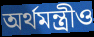
অর্থমন্ত্রীও